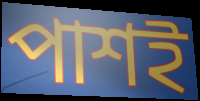
পাশই